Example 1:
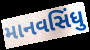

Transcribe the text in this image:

માનવસિંધુ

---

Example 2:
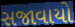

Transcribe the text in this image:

સજાવાયો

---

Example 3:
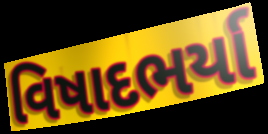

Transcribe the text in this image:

વિષાદભર્યા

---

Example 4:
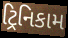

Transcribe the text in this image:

ટ્રિનિકામ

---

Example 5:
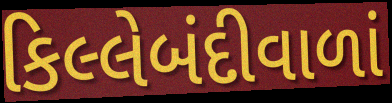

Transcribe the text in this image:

કિલ્લેબંદીવાળાં